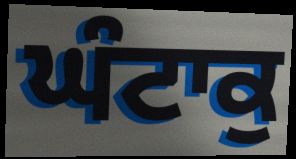
ਘੰਟਾਕੁ